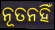
ନୂତନହିଁ